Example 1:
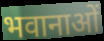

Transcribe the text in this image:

भवानाओं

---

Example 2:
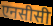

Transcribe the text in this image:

एनसीसी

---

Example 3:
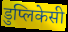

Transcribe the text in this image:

डुप्लिकेसी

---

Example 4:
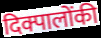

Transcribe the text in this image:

दिक्पालोंकी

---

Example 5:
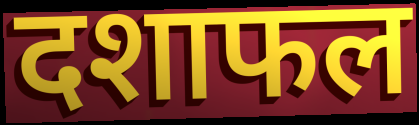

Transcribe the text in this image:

दशाफल